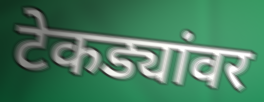
टेकड्यांवर